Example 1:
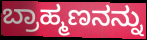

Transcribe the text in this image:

ಬ್ರಾಹ್ಮಣನನ್ನು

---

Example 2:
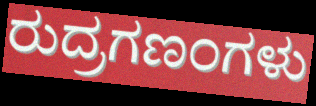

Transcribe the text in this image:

ರುದ್ರಗಣಂಗಳು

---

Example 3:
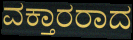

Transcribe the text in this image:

ವಕ್ತಾರರಾದ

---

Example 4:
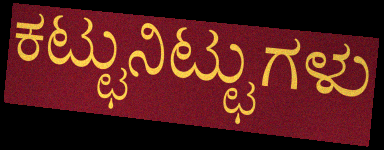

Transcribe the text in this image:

ಕಟ್ಟುನಿಟ್ಟುಗಳು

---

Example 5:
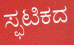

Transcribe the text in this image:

ಸ್ಫಟಿಕದ